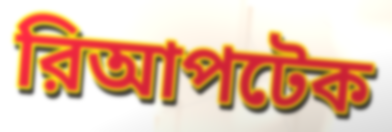
রিআপটেক